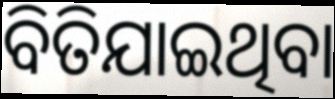
ବିତିଯାଇଥିବା